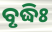
ବୃଦ୍ଧିଃ